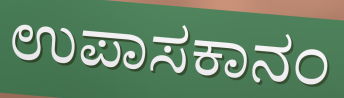
ಉಪಾಸಕಾನಂ